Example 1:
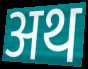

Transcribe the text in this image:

अथ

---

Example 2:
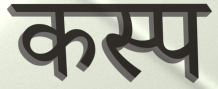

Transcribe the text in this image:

कस्प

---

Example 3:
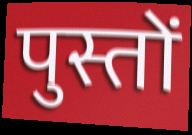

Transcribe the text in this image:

पुस्तों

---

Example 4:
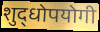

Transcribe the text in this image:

शुद्धोपयोगी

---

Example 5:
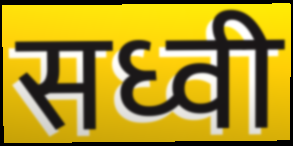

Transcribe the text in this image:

सध्वी